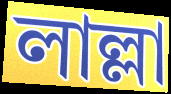
লাল্লা